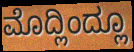
ಮೊದ್ಲಿಂದ್ಲೂ